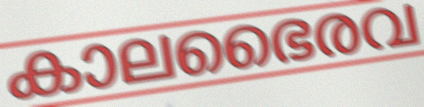
കാലഭൈരവ